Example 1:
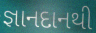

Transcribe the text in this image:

જ્ઞાનદાનથી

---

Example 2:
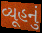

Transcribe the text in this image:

વ્યૂહનું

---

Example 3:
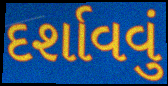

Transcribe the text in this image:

દર્શાવવું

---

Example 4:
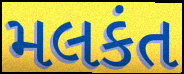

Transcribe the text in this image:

મલકંત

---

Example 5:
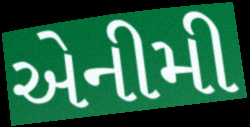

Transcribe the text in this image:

એનીમી